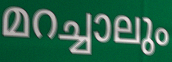
മറച്ചാലും